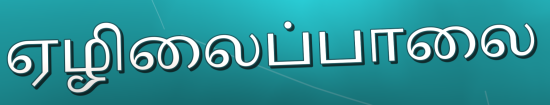
ஏழிலைப்பாலை